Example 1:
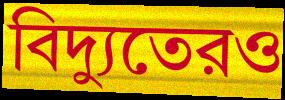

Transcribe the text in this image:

বিদ্যুতেরও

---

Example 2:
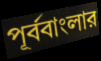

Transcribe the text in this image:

পূর্ববাংলার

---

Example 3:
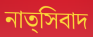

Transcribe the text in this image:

নাত্সিবাদ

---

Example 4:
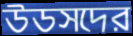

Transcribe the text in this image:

উডসদের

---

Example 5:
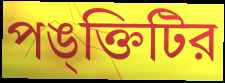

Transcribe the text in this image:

পঙ্‌ক্তিটির